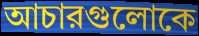
আচারগুলোকে